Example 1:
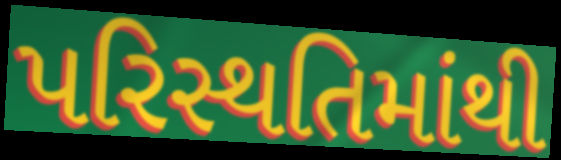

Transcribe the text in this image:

પરિસ્થતિમાંથી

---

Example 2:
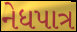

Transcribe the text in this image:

નેધપાત્ર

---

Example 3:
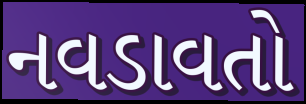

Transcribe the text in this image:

નવડાવતો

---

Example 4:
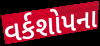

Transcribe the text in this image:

વર્કશોપના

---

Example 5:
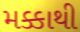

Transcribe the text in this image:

મક્કાથી